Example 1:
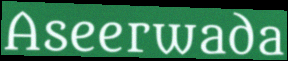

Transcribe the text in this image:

Aseerwada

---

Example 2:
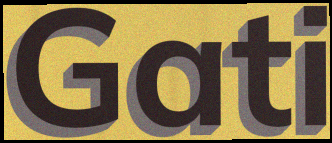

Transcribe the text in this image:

Gati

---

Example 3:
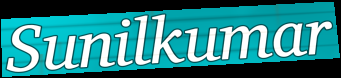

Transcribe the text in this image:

Sunilkumar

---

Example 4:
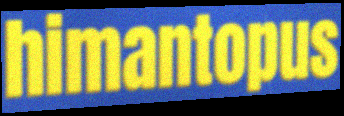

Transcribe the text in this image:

himantopus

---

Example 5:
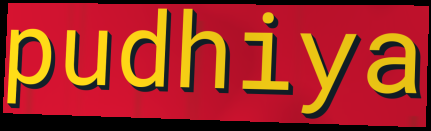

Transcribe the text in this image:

pudhiya